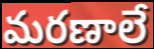
మరణాలే